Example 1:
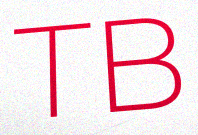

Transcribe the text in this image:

TB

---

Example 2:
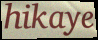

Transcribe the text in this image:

hikaye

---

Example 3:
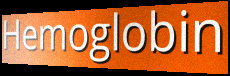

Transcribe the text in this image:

Hemoglobin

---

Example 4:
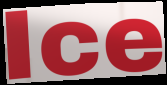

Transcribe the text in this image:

Ice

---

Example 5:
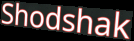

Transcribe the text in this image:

Shodshak